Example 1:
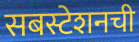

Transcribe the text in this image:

सबस्टेशनची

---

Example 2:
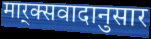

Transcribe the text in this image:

मार्क्सवादानुसार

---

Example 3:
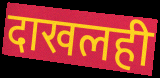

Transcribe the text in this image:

दाखलही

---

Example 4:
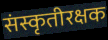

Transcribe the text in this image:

संस्कृतीरक्षक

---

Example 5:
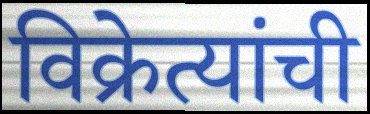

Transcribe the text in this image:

विक्रेत्यांची